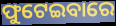
ଫୁଟେଇବାରେ